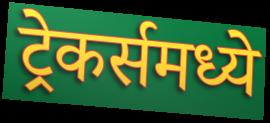
ट्रेकर्समध्ये